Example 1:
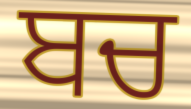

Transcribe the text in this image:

ਬਚ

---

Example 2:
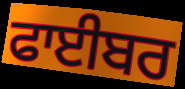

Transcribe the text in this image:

ਫਾਈਬਰ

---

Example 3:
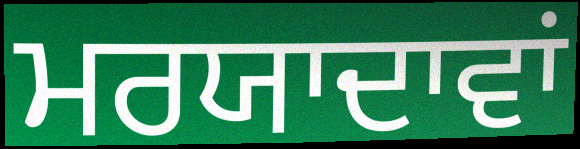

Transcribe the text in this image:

ਮਰਯਾਦਾਵਾਂ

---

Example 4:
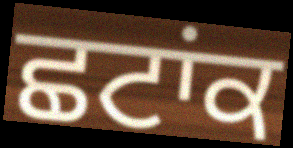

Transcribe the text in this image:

ਛਟਾਂਕ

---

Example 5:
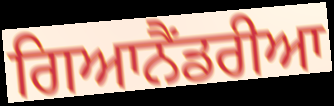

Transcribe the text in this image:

ਗਿਆਨੈਂਡਰੀਆ